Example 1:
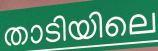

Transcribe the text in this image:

താടിയിലെ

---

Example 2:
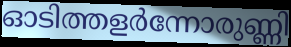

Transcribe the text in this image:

ഓടിത്തളർന്നോരുണ്ണി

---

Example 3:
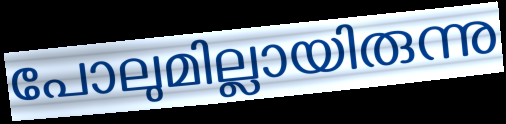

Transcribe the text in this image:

പോലുമില്ലായിരുന്നു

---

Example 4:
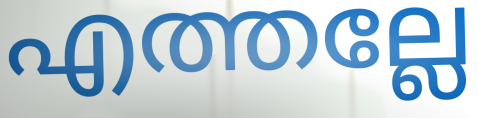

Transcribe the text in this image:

എത്തല്ലേ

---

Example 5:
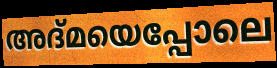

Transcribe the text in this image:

അദ്മയെപ്പോലെ